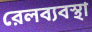
রেলব্যবস্থা